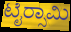
ಟೈರ‍್ಸಾಮಿ